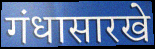
गंधासारखे